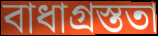
বাধাগ্ৰস্ততা